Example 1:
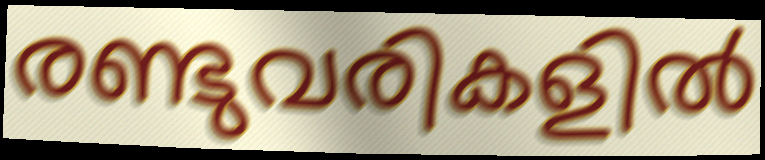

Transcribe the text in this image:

രണ്ടുവരികളിൽ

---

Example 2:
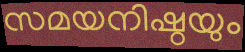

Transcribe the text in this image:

സമയനിഷ്ഠയും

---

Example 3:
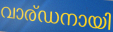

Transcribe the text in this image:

വാര്ഡനായി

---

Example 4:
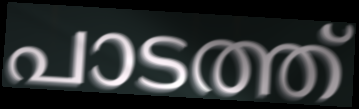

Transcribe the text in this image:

പാടത്ത്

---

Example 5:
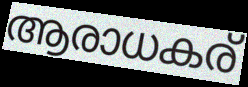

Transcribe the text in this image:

ആരാധകര്